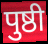
पुष्ठी